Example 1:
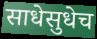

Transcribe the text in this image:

साधेसुधेच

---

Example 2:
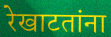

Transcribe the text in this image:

रेखाटतांना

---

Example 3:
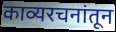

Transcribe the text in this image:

काव्यरचनांतून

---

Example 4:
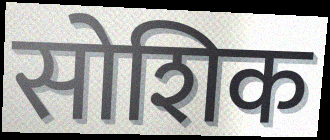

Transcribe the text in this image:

सोशिक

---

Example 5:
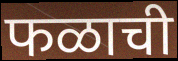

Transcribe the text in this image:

फळाची